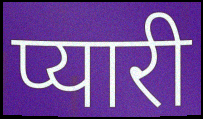
प्यारी